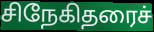
சிநேகிதரைச்